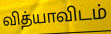
வித்யாவிடம்